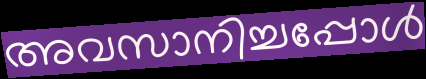
അവസാനിച്ചപ്പോൾ